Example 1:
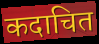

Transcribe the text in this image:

कदाचित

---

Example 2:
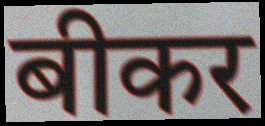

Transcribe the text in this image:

बीकर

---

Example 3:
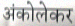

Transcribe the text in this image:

अंकोलेकर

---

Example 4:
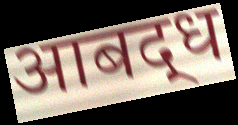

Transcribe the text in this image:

आबद्ध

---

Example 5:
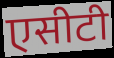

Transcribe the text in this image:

एसीटी